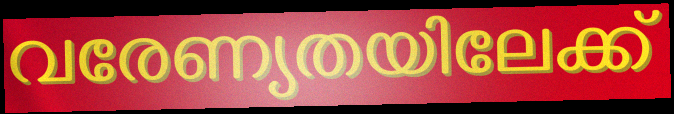
വരേണ്യതയിലേക്ക്